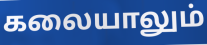
கலையாலும்